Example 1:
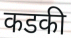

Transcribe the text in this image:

कडकी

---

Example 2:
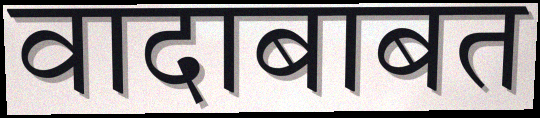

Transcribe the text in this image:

वादाबाबत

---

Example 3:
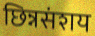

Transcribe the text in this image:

छिन्नसंशय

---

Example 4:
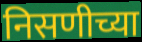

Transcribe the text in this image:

निसणीच्या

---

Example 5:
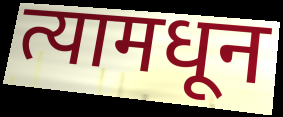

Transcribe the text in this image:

त्यामधून